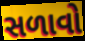
સળાવો